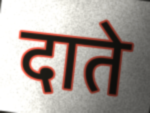
दाते